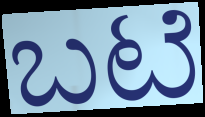
ಬಟೆ